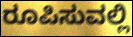
ರೂಪಿಸುವಲ್ಲಿ